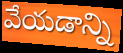
వేయడాన్ని